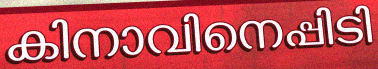
കിനാവിനെപ്പിടി